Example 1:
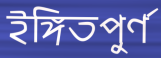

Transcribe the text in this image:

ইঙ্গিতপুর্ণ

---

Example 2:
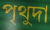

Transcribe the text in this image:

পৃথুদা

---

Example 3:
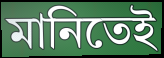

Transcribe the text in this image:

মানিতেই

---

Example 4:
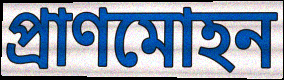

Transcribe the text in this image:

প্রাণমোহন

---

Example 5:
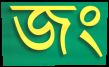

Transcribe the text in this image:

জং